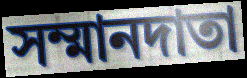
সম্মানদাতা